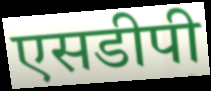
एसडीपी